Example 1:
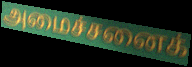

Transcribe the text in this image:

அமைச்சனைக்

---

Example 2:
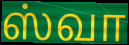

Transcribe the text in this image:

ஸ்வா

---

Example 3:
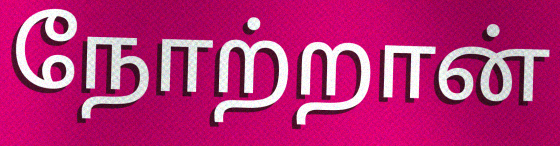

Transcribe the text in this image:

நோற்றான்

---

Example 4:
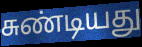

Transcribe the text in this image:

சுண்டியது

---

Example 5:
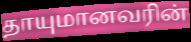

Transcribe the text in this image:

தாயுமானவரின்